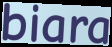
biara